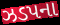
ઝડપના